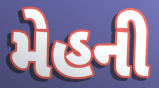
મેહની